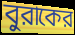
বুরাকের